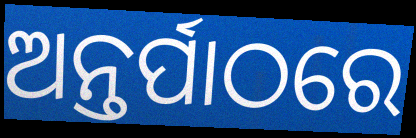
ଅନ୍ତର୍ପାଠରେ